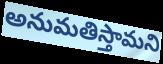
అనుమతిస్తామని